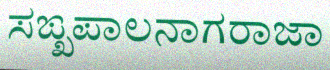
ಸಙ್ಖಪಾಲನಾಗರಾಜಾ